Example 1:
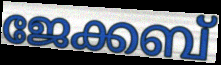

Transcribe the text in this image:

ജേക്കബ്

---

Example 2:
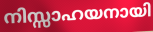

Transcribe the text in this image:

നിസ്സാഹയനായി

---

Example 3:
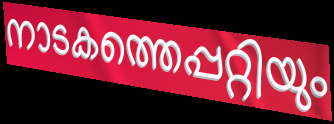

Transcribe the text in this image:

നാടകത്തെപ്പറ്റിയും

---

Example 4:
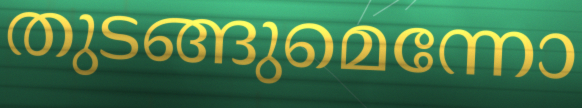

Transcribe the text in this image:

തുടങ്ങുമെന്നോ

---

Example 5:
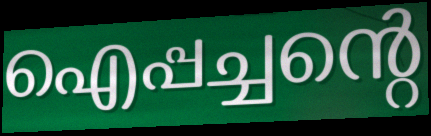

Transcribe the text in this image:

ഐപ്പച്ചന്റെ